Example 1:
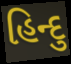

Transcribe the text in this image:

હિન્દુ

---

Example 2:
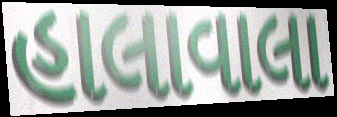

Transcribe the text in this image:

હાલાવાલા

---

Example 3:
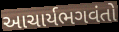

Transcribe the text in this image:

આચાર્યભગવંતો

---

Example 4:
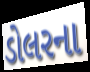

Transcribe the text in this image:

ડોલરના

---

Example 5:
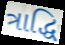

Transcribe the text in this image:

ત્રાદ્ધિ